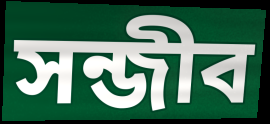
সন্জীব